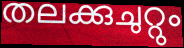
തലക്കുചുറ്റും